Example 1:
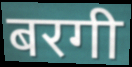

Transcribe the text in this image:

बरगी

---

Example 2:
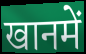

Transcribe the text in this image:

खानमें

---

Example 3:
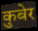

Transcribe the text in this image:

कुबेर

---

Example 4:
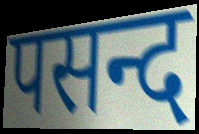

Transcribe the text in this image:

पसन्द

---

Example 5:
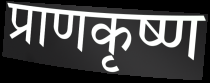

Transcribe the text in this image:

प्राणकृष्ण